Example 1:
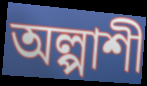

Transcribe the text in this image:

অল্পাশী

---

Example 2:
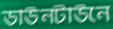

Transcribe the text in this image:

ডাউনটাউনে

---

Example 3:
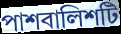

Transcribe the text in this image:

পাশবালিশটি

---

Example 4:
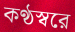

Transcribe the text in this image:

কণ্ঠস্বরে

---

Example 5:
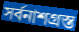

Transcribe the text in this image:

সর্বনাশগ্রস্ত